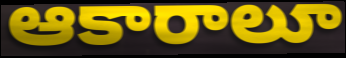
ఆకారాలూ